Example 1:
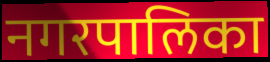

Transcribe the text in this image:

नगरपालिका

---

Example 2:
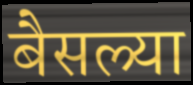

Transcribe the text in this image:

बैसल्या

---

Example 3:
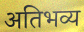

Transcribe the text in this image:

अतिभव्य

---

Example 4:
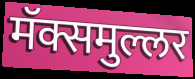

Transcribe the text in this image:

मॅक्समुल्लर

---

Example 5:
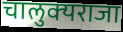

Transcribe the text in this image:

चालुक्यराजा